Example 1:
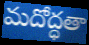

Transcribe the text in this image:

మదోద్ధతా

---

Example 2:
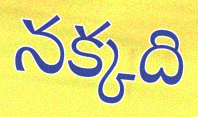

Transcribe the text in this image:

నక్కది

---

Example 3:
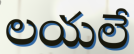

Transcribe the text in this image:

లయలే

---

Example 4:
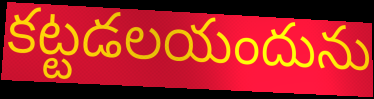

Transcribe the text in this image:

కట్టడలయందును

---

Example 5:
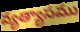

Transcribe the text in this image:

వ్యత్యాసము